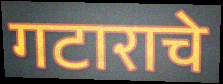
गटाराचे